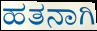
ಹತನಾಗಿ